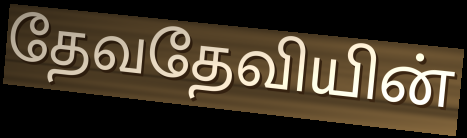
தேவதேவியின்